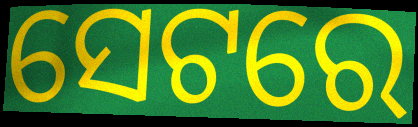
ସେଟରେ